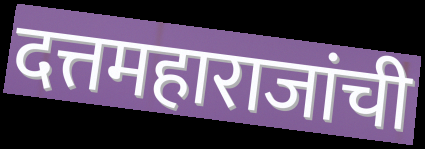
दत्तमहाराजांची